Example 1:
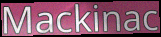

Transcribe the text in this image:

Mackinac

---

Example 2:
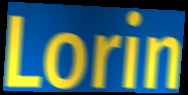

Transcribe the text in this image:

Lorin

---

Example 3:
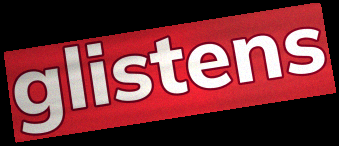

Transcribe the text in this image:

glistens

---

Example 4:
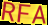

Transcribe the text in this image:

RFA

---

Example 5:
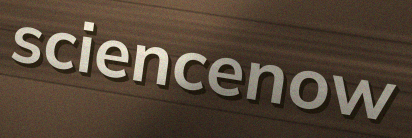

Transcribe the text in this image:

sciencenow